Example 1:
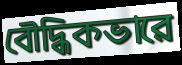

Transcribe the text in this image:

বৌদ্ধিকভাৱে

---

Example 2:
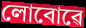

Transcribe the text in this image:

লোবোৱে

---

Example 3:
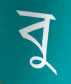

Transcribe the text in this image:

বু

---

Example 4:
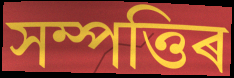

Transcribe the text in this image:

সম্পত্তিৰ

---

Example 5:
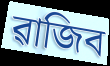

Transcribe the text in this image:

ৱাজিব